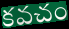
కవచం